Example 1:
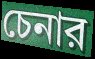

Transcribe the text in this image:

চেনার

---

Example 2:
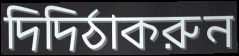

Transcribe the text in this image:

দিদিঠাকরুন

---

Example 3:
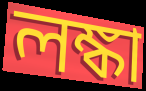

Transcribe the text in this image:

লঙ্কা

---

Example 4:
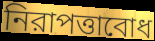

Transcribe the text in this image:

নিরাপত্তাবোধ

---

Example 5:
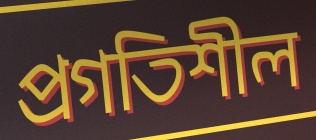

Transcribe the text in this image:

প্রগতিশীল